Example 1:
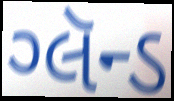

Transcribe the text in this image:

ગ્લૅન્ડ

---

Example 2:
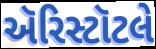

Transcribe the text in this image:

ઍરિસ્ટૉટલે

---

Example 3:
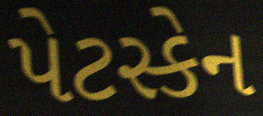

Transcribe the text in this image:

પેટસ્કેન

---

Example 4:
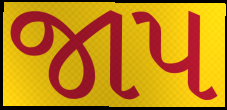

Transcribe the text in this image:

જાપ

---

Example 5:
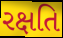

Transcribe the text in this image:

રક્ષતિ